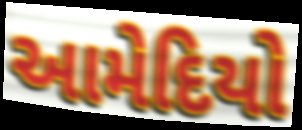
આમેદિયો